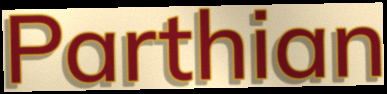
Parthian